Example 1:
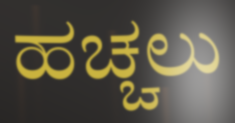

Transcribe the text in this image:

ಹಚ್ಚಲು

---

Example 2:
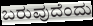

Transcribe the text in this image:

ಬರುವುದೆಂದು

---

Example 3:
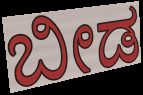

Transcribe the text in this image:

ಬೀಡ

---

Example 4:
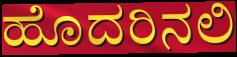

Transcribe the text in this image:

ಹೊದರಿನಲಿ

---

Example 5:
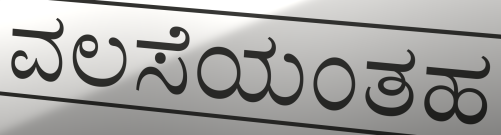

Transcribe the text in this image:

ವಲಸೆಯಂತಹ